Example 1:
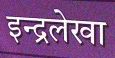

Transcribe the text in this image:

इन्द्रलेखा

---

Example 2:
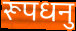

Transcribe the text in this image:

रूपधनु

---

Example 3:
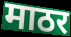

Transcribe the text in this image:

माठर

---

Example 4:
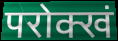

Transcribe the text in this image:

परोक्खं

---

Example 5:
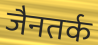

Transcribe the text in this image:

जैनतर्क